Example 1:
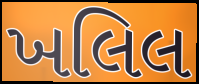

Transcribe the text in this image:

ખલિલ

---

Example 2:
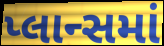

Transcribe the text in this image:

પ્લાન્સમાં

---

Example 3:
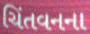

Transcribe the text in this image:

ચિંતવનના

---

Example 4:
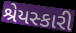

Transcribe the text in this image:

શ્રેયસ્કારી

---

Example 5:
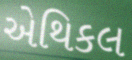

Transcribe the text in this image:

એથિકલ